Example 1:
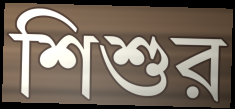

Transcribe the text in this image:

শিশুর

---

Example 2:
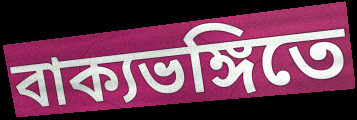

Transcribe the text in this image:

বাক্যভঙ্গিতে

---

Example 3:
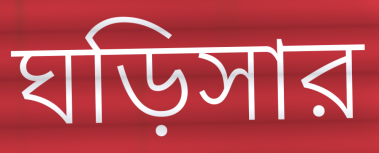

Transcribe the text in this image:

ঘড়িসার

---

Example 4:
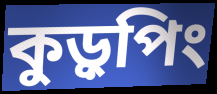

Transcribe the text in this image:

কুড়ুপিং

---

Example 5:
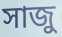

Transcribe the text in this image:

সাজু